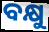
ବକ୍ଷୁ